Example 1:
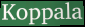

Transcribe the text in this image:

Koppala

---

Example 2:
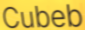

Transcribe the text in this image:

Cubeb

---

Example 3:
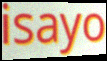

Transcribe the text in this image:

isayo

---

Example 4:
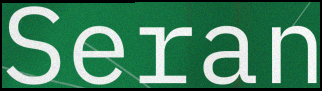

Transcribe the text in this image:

Seran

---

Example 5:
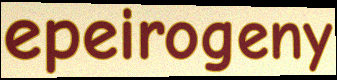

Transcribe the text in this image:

epeirogeny